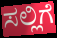
ಸಲ್ಲಿಗೆ